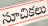
సూచికలు